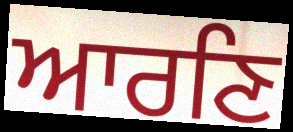
ਆਰਣਿ